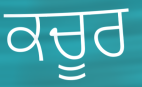
ਕਚੂਰ